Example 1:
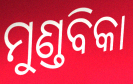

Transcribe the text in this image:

ମୁଣ୍ଡବିକା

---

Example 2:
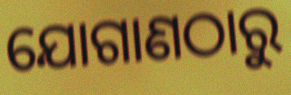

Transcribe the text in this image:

ଯୋଗାଣଠାରୁ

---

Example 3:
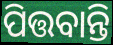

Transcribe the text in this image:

ପିତ୍ତବାନ୍ତି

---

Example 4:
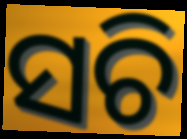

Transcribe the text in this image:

ସଚି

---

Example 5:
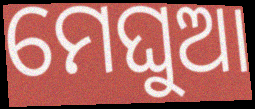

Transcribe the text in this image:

ମେଘୁଆ